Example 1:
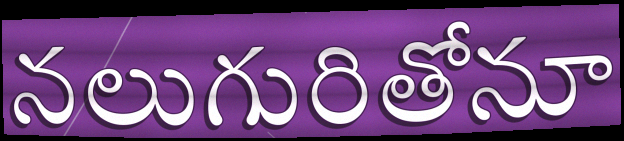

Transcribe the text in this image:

నలుగురితోనూ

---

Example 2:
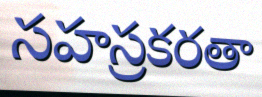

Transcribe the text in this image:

సహస్రకరతా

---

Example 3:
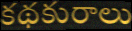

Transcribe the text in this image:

కథకురాలు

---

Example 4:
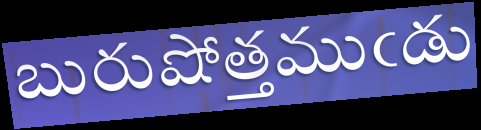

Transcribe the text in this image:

బురుషోత్తముఁడు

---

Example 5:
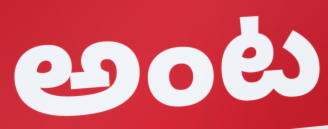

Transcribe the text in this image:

అంట